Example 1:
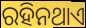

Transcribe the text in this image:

ରହିନଥାଏ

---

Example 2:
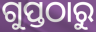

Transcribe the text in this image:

ଗୁପ୍ତଠାରୁ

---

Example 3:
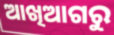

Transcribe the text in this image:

ଆଖିଆଗରୁ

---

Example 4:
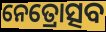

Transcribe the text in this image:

ନେତ୍ରୋତ୍ସବ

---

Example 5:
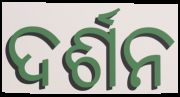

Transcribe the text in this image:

ଦର୍ଶନ